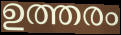
ഉത്തരം